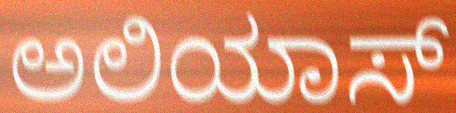
ಅಲಿಯಾಸ್